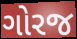
ગોરજ